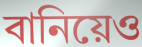
বানিয়েও